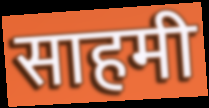
साहमी